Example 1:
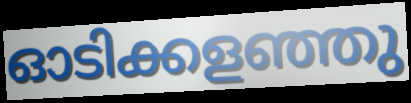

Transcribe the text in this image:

ഓടിക്കളഞ്ഞു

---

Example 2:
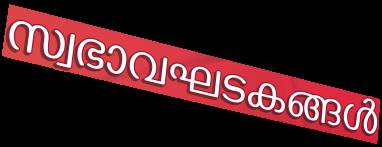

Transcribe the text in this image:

സ്വഭാവഘടകങ്ങൾ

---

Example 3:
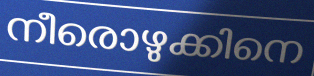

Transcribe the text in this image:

നീരൊഴുക്കിനെ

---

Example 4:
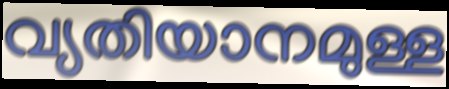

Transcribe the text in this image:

വ്യതിയാനമുള്ള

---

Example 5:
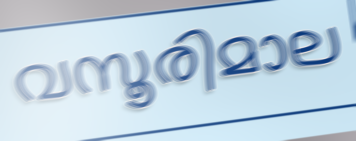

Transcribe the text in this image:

വസൂരിമാല